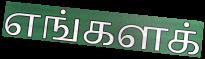
எங்களக்